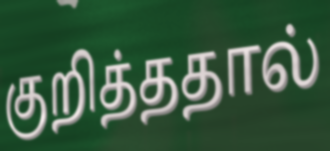
குறித்ததால்